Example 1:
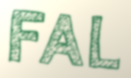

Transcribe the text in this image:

FAL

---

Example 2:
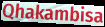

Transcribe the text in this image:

Qhakambisa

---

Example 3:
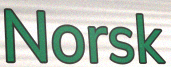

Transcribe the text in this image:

Norsk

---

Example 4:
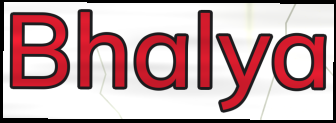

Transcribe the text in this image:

Bhalya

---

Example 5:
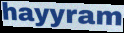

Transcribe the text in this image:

hayyram